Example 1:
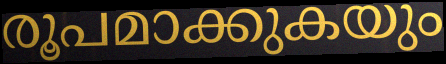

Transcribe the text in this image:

രൂപമാക്കുകയും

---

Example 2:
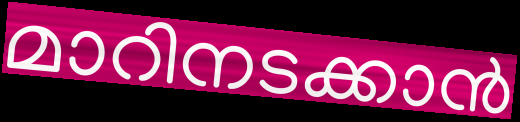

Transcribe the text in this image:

മാറിനടക്കാൻ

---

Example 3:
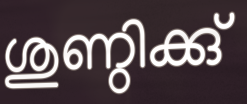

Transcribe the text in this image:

ശുണ്ഠിക്കു്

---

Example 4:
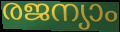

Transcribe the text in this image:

രജന്യാം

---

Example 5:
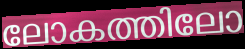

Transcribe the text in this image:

ലോകത്തിലോ